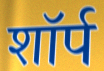
शॉर्प